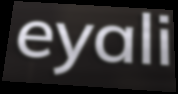
eyali